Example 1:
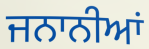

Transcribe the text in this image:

ਜਨਾਨੀਆਂ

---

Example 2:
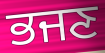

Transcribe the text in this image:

ਭਜਣ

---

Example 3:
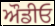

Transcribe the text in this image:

ਔਡੀਓ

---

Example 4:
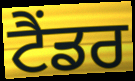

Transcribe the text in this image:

ਟੈਂਡਰ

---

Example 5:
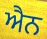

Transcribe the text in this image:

ਐਨ